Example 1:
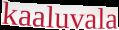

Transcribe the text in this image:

kaaluvala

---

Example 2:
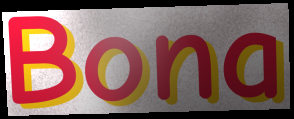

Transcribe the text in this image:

Bona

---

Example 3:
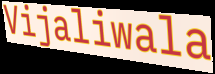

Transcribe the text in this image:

Vijaliwala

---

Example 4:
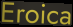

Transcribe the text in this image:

Eroica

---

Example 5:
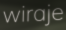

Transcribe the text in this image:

wiraje